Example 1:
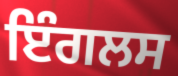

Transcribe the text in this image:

ਇੰਗਲਸ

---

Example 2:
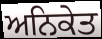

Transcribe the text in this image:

ਅਨਿਕੇਤ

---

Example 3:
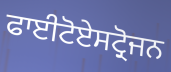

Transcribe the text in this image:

ਫਾਈਟੋਏਸਟ੍ਰੋਜਨ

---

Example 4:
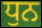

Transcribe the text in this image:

ਧੁਨ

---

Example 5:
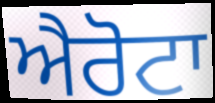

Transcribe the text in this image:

ਐਰੋਟਾ